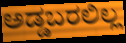
ಅಡ್ಡಬರಲಿಲ್ಲ